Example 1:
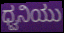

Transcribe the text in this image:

ಧ್ವನಿಯು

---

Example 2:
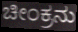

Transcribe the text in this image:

ಚೀಂಕ್ರನು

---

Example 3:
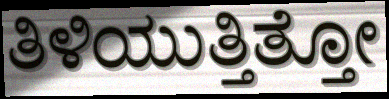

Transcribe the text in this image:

ತಿಳಿಯುತ್ತಿತ್ತೋ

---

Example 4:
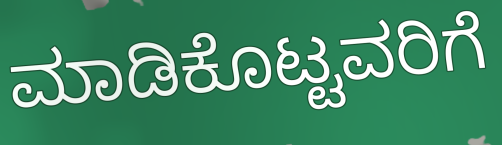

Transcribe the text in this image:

ಮಾಡಿಕೊಟ್ಟವರಿಗೆ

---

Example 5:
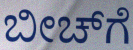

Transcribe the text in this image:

ಬೀಚ್‌ಗೆ